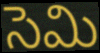
సెమి